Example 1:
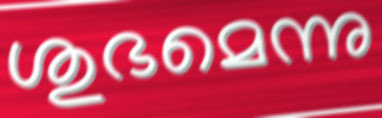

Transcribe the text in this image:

ശുഭമെന്നു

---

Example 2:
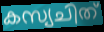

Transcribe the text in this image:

കസ്യചിത്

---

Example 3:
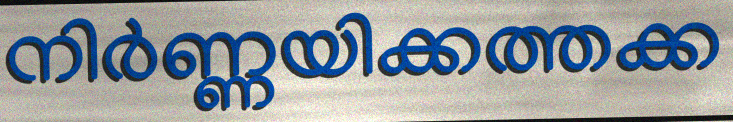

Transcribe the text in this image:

നിർണ്ണയിക്കത്തക്ക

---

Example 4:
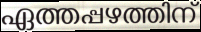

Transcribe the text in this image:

ഏത്തപ്പഴത്തിന്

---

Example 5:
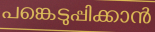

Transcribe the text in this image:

പങ്കെടുപ്പിക്കാൻ